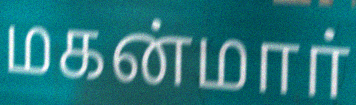
மகன்மார்